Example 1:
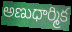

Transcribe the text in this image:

అణుధార్మిక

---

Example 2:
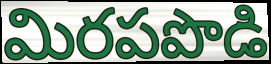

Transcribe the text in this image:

మిరపపొడి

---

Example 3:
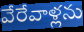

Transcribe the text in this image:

వేరేవాళ్లను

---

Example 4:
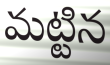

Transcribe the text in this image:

మట్టిన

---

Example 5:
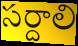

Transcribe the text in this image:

సర్దాలి